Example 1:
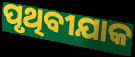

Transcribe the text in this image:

ପୃଥିବୀଯାକ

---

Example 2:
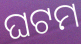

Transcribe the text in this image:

ଘଟମ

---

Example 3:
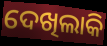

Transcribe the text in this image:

ଦେଖିଲାକି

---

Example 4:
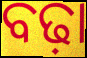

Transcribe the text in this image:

ବଢ଼ା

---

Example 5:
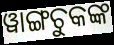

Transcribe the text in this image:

ୱାଙ୍ଗଚୁକଙ୍କ